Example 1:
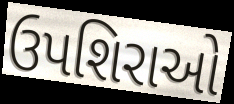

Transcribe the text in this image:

ઉપશિરાઓ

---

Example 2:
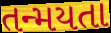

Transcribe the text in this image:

તન્મયતા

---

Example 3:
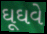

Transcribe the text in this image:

ઘૂઘવે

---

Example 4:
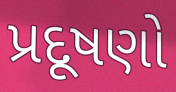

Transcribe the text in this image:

પ્રદૂષણો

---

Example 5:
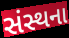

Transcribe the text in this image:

સંસ્થના